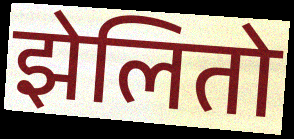
झेलितो